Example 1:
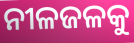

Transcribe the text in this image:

ନୀଳଜଳକୁ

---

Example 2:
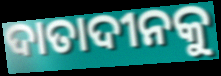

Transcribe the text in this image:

ଦାତାଦୀନକୁ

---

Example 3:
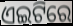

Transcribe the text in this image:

ଏଇଟିରେ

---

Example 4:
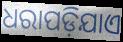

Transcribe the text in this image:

ଧରାପଡ଼ିଯାଏ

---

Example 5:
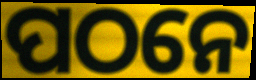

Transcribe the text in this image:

ପଠନେ